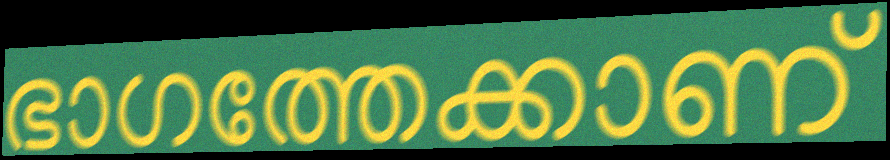
ഭാഗത്തേക്കാണ്